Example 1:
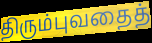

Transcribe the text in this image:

திரும்புவதைத்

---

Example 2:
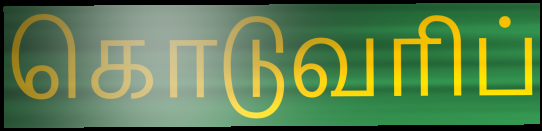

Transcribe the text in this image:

கொடுவரிப்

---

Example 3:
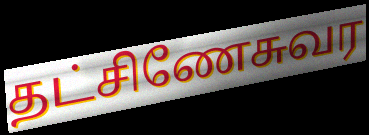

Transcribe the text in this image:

தட்சிணேசுவர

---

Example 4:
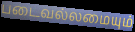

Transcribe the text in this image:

படைவல்லமையும்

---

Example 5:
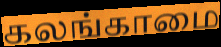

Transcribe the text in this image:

கலங்காமை